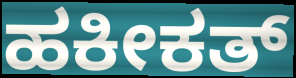
ಹಕೀಕತ್